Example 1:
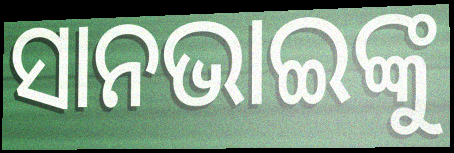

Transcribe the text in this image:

ସାନଭାଇଙ୍କୁ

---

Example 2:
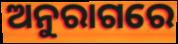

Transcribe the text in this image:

ଅନୁରାଗରେ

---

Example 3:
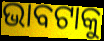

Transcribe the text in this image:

ଭାବଟାକୁ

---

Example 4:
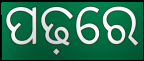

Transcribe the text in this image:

ପଢ଼ରେ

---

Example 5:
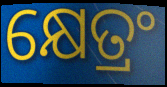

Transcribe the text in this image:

କ୍ଷେତ୍ରଂ